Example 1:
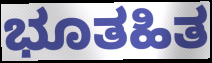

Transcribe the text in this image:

ಭೂತಹಿತ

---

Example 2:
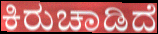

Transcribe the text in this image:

ಕಿರುಚಾಡಿದೆ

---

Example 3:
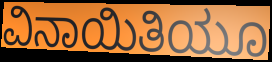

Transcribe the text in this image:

ವಿನಾಯಿತಿಯೂ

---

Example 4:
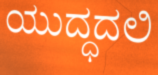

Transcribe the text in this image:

ಯುದ್ಧದಲಿ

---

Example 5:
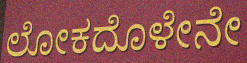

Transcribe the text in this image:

ಲೋಕದೊಳೇನೇ